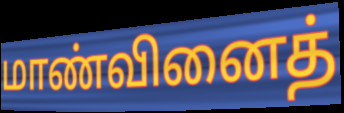
மாண்வினைத்